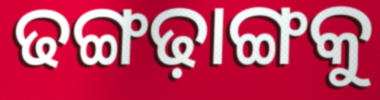
ଢଙ୍ଗଢ଼ାଙ୍ଗକୁ